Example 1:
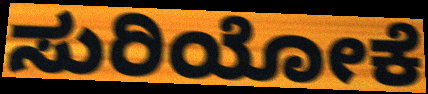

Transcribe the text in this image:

ಸುರಿಯೋಕೆ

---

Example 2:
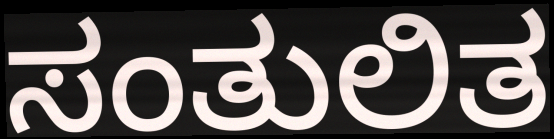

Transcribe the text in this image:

ಸಂತುಲಿತ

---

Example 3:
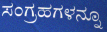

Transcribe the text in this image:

ಸಂಗ್ರಹಗಳನ್ನೂ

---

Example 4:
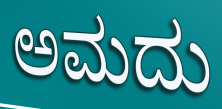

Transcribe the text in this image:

ಅಮದು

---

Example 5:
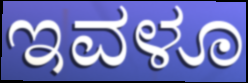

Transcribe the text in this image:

ಇವಳೂ